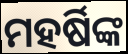
ମହର୍ଷିଙ୍କ